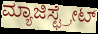
ಮ್ಯಾಜಿಸ್ಟ್ರೇಟ್